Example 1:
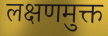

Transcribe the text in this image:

लक्षणमुक्त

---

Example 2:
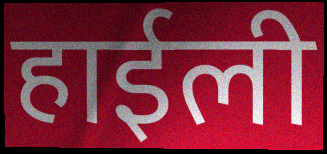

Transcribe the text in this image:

हाईली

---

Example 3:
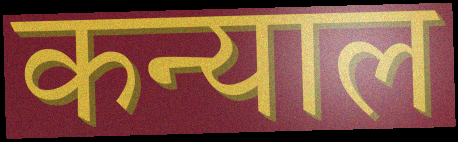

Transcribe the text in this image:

कन्याल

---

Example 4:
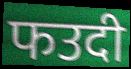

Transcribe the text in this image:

फउदी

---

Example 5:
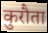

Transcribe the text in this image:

कुरौता